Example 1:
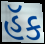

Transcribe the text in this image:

હૅક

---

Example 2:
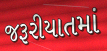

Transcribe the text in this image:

જરૂરીયાતમાં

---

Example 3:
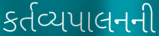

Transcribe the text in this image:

કર્તવ્યપાલનની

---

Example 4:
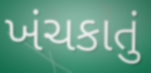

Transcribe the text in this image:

ખંચકાતું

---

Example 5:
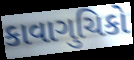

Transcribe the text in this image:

કાવાગુચિકો